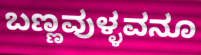
ಬಣ್ಣವುಳ್ಳವನೂ